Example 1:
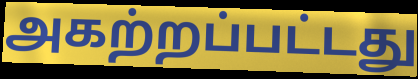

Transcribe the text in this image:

அகற்றப்பட்டது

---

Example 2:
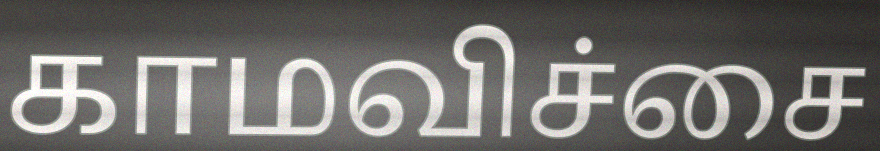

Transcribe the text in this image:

காமவிச்சை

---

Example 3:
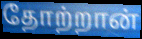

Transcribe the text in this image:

தோற்றான்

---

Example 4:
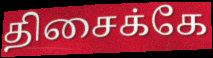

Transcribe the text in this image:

திசைக்கே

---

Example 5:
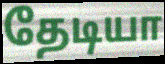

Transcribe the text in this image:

தேடியா